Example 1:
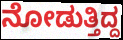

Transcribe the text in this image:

ನೋಡುತ್ತಿದ್ದ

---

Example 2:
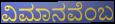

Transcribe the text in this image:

ವಿಮಾನವೆಂಬ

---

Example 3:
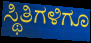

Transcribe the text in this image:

ಸ್ಥಿತಿಗಳಿಗೂ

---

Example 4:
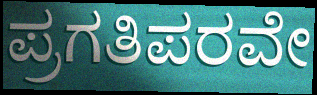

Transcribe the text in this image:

ಪ್ರಗತಿಪರವೇ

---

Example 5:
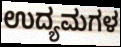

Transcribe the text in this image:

ಉದ್ಯಮಗಳ